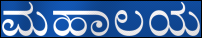
ಮಹಾಲಯ